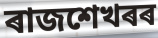
ৰাজশেখৰৰ